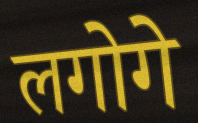
लगोगे